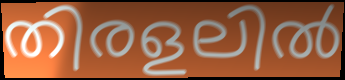
തിരളലിൽ